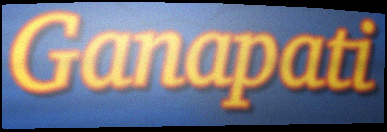
Ganapati